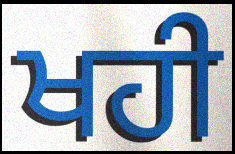
ਖਹੀ